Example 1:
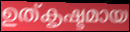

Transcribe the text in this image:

ഉത്കൃഷ്ടമായ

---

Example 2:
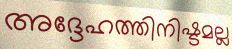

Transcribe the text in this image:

അദ്ദേഹത്തിനിഷ്ടമല്ല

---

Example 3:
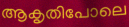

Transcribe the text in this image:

ആകൃതിപോലെ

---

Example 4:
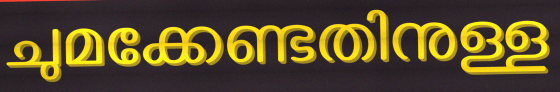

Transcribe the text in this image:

ചുമക്കേണ്ടതിനുള്ള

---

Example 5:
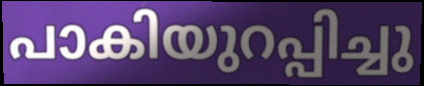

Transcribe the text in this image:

പാകിയുറപ്പിച്ചു